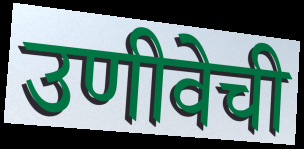
उणीवेची